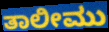
ತಾಲೀಮು